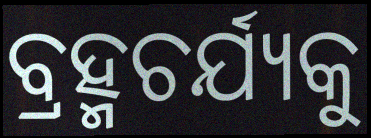
ବ୍ରହ୍ମଚର୍ଯ୍ୟକୁ